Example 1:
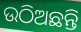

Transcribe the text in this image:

ଉଠିଅଛନ୍ତି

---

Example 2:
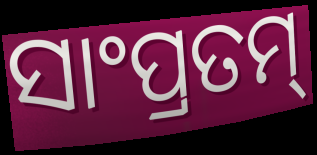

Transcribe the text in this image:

ସାଂପ୍ରତମ୍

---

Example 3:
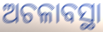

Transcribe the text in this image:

ଅଚଳାବସ୍ଥା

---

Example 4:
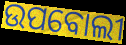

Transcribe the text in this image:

ଉପବୋଲୀ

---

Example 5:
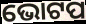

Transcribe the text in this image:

ଭୋଟପ